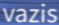
vazis